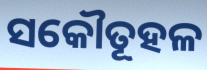
ସକୌତୂହଳ